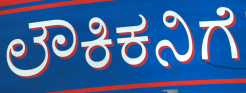
ಲೌಕಿಕನಿಗೆ